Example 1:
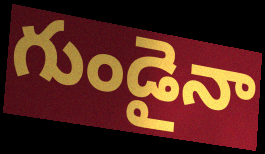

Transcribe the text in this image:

గుండైనా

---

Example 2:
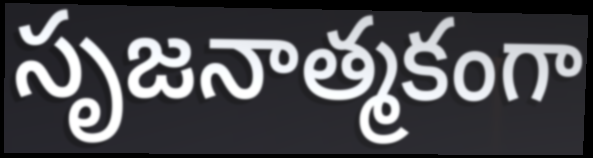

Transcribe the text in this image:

సృజనాత్మకంగా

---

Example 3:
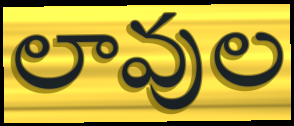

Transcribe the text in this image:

లావుల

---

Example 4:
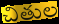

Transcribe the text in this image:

చితుల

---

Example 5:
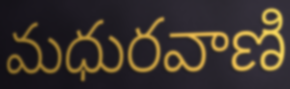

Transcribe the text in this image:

మధురవాణి